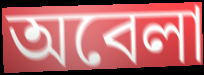
অবেলা